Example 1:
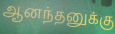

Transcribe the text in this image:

ஆனந்தனுக்கு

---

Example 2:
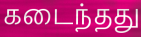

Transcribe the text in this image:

கடைந்தது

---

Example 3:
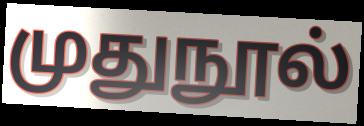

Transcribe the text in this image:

முதுநூல்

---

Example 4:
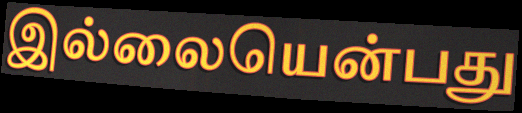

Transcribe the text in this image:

இல்லையென்பது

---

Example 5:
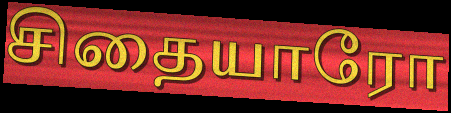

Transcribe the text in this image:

சிதையாரோ